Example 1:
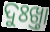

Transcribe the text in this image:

ଦୁଃଖ୍ତା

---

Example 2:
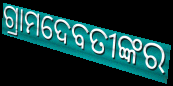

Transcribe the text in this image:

ଗ୍ରାମଦେବତୀଙ୍କର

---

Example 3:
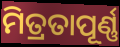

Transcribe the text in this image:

ମିତ୍ରତାପୂର୍ଣ୍ଣ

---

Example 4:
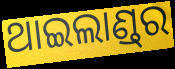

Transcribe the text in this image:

ଥାଇଲାଣ୍ଡ୍‌ର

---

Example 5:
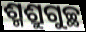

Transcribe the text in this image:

ଶ୍ମଶ୍ରୁଗୁଚ୍ଛ